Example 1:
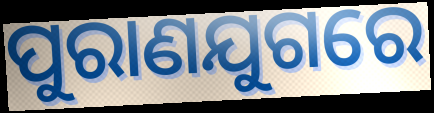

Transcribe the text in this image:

ପୁରାଣଯୁଗରେ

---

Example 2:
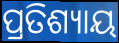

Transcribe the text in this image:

ପ୍ରତିଶ୍ୟାୟ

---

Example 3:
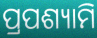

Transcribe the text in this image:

ପ୍ରପଶ୍ୟାମି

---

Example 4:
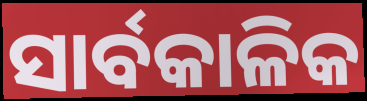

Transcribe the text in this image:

ସାର୍ବକାଳିକ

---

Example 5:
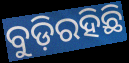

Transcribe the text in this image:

ବୁଡ଼ିରହିଛି